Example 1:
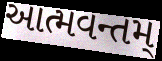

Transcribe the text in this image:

આત્મવન્તમ્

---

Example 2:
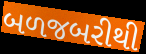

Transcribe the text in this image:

બળજબરીથી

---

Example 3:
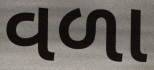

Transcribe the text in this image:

વળા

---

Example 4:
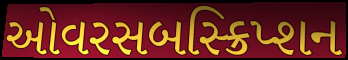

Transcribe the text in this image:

ઓવરસબસ્ક્રિપ્શન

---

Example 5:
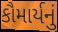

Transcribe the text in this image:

કૌમાર્યનું